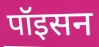
पॉइसन